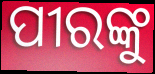
ପୀରଙ୍କୁ